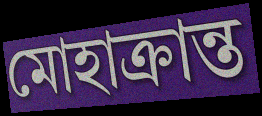
মোহাক্রান্ত